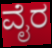
ವೈರ